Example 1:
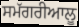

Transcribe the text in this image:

ਸਮੱਗਰੀਆਲੂ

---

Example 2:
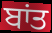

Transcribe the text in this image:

ਬਾਂਤ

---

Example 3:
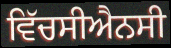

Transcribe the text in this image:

ਵਿੱਚਸੀਐਨਸੀ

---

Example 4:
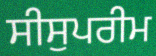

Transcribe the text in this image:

ਸੀਸੁਪਰੀਮ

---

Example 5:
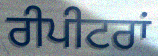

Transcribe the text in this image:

ਰੀਪੀਟਰਾਂ